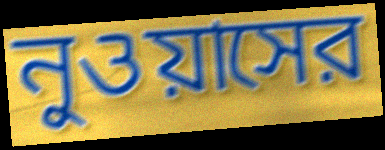
নুওয়াসের